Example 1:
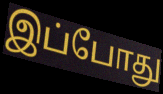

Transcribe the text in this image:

இப்போது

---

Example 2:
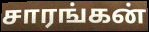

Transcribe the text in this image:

சாரங்கன்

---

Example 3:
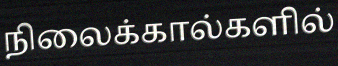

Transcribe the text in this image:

நிலைக்கால்களில்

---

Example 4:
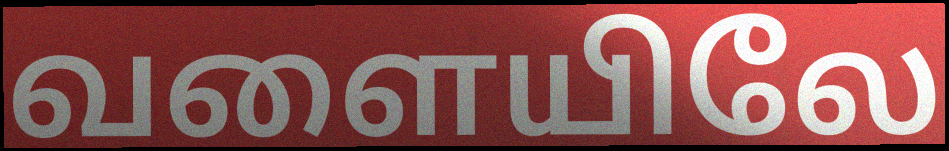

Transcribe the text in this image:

வளையிலே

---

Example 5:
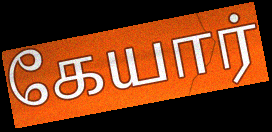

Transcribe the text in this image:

கேயார்